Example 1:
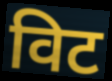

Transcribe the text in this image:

विट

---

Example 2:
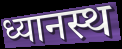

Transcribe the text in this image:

ध्यानस्थ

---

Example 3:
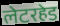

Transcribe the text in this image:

लेटरहेड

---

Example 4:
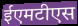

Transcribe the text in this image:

ईएमटीएस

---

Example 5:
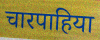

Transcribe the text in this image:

चारपाहिया